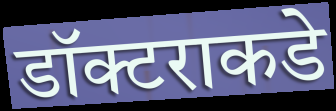
डॉक्टराकडे